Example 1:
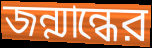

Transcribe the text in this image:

জন্মান্ধের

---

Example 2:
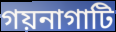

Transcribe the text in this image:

গয়নাগাটি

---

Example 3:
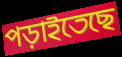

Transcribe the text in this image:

পড়াইতেছে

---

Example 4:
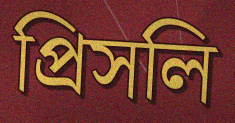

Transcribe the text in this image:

প্রিসলি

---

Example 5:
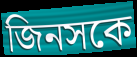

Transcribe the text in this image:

জিনসকে